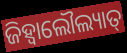
ଜିହ୍ଵାଲୌଲ୍ୟାତ୍